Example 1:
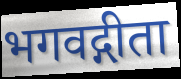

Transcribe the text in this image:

भगवद्गीता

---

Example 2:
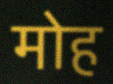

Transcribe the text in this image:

मोह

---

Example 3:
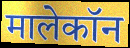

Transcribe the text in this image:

मालेकॉन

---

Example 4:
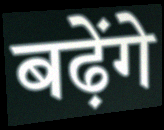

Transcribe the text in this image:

बढ़ेंगे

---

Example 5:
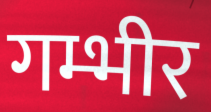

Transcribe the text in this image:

गम्भीर